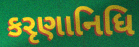
કરૃણાનિધિ